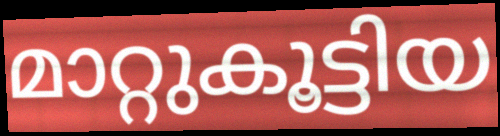
മാറ്റുകൂട്ടിയ